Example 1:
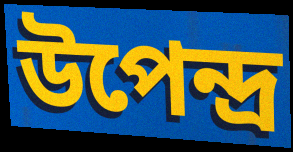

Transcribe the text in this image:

উপেন্দ্ৰ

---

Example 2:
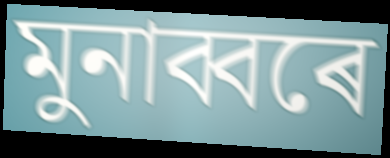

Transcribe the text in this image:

মুনাব্বৰে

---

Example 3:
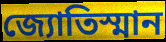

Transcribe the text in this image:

জ্যোতিস্মান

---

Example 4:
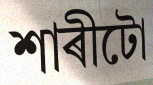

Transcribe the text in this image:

শাৰীটো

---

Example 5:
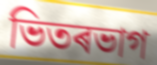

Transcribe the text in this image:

ভিতৰভাগ